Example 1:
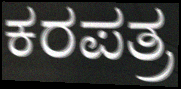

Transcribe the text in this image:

ಕರಪತ್ರ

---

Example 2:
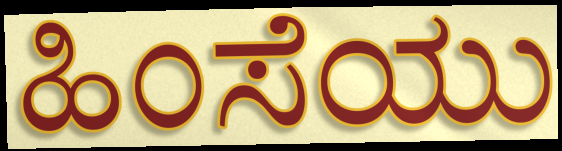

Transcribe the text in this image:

ಹಿಂಸೆಯು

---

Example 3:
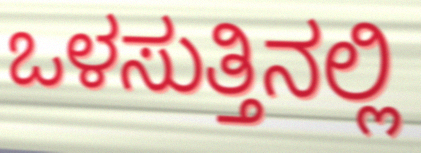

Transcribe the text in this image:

ಒಳಸುತ್ತಿನಲ್ಲಿ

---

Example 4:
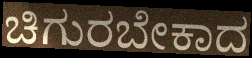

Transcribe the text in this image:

ಚಿಗುರಬೇಕಾದ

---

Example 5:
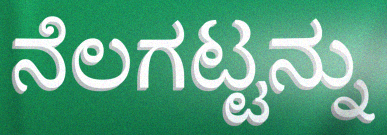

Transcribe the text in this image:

ನೆಲಗಟ್ಟನ್ನು